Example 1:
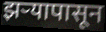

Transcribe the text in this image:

झऱ्यापासून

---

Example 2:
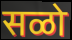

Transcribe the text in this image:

सळो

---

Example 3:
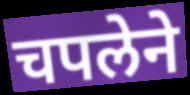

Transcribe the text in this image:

चपलेने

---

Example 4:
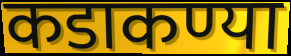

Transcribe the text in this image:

कडाकण्या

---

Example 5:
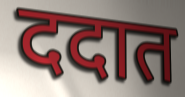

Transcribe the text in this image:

ददात